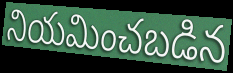
నియమించబడిన